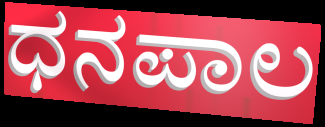
ಧನಪಾಲ